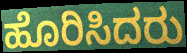
ಹೊರಿಸಿದರು